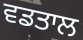
ਵਡਤਾਲ